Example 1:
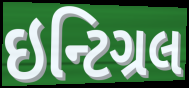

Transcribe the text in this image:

ઇન્ટિગ્રલ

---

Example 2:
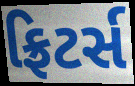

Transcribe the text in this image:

ફ્રિટર્સ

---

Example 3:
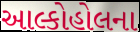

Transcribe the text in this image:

આલ્કોહોલના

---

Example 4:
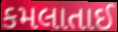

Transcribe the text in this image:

કમલાતાઈ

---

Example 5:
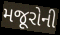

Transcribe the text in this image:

મજૂરોની